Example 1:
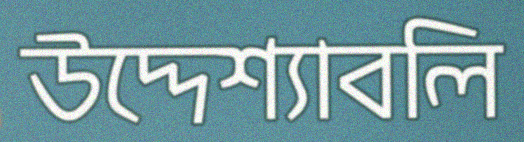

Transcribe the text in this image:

উদ্দেশ্যাবলি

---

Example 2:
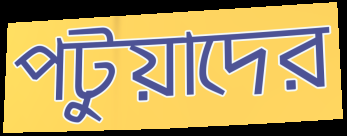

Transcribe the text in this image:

পটুয়াদের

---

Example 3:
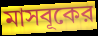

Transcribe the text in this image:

মাসবূকের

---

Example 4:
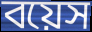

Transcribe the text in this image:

বয়েস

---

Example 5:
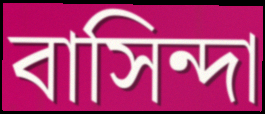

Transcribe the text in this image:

বাসিন্দা